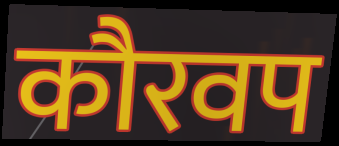
कौरवप